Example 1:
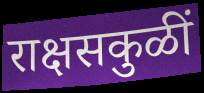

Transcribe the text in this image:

राक्षसकुळीं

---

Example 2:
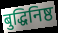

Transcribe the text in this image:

बुद्धिनिष्ठ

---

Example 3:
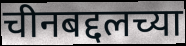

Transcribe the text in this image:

चीनबद्दलच्या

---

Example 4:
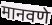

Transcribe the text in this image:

मानवणे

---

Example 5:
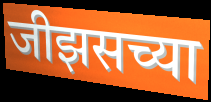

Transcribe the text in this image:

जीझसच्या